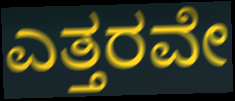
ಎತ್ತರವೇ